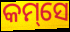
କମ୍‌ସେ